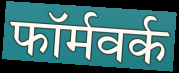
फॉर्मवर्क